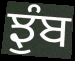
ਝੁੰਬ